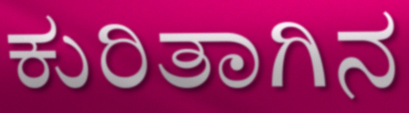
ಕುರಿತಾಗಿನ